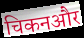
चिकनऔर